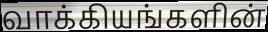
வாக்கியங்களின்